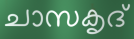
ചാസകൃദ്